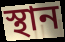
স্থান